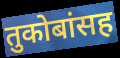
तुकोबांसह